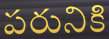
పరునికి